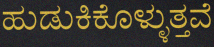
ಹುಡುಕಿಕೊಳ್ಳುತ್ತವೆ